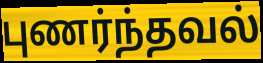
புணர்ந்தவல்